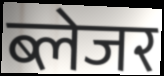
ब्लेजर